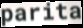
parita